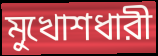
মুখোশধারী